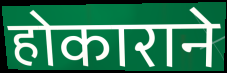
होकाराने